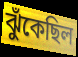
ঝুঁকেছিল